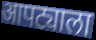
आपट्याला